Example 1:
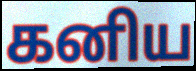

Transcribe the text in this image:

கனிய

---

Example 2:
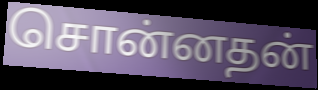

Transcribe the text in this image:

சொன்னதன்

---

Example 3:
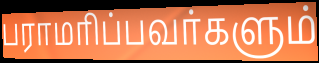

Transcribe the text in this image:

பராமரிப்பவர்களும்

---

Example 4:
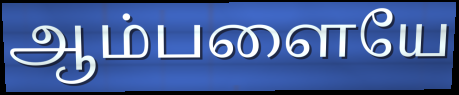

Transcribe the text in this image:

ஆம்பளையே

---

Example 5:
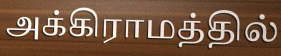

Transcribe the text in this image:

அக்கிராமத்தில்